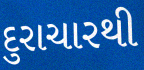
દુરાચારથી